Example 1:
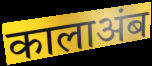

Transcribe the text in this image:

कालाअंब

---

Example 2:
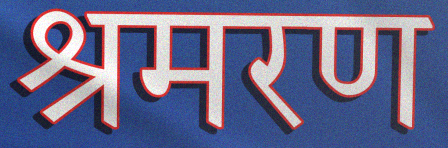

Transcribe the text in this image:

श्रमरण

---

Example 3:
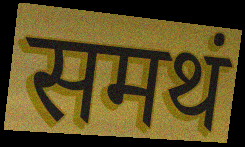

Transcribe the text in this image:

समथं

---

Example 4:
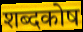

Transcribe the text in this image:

शब्दकोष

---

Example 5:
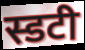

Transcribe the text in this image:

स्डटी